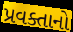
પ્રવક્તાનો